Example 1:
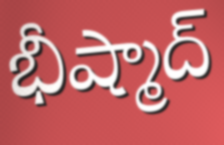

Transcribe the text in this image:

భీష్మాద్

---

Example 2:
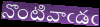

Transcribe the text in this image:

నొంటివాఁడఁ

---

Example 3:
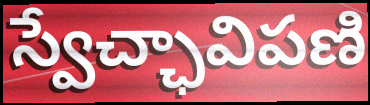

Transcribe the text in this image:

స్వేచ్ఛావిపణి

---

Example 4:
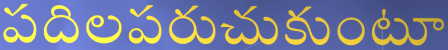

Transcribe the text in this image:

పదిలపరుచుకుంటూ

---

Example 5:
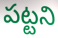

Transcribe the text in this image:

పట్టని